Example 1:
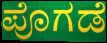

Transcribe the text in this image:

ಪೊಗಡೆ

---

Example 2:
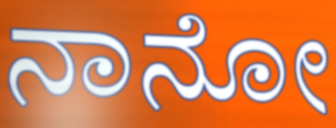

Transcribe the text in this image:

ನಾನೋ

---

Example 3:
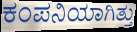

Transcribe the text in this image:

ಕಂಪನಿಯಾಗಿತ್ತು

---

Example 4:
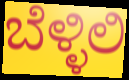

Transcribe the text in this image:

ಬೆಳ್ಳಿಲಿ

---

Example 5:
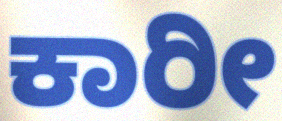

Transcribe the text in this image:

ಕಾರೀ